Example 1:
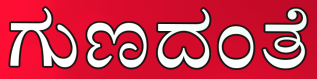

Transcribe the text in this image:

ಗುಣದಂತೆ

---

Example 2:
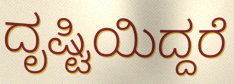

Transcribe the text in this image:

ದೃಷ್ಟಿಯಿದ್ದರೆ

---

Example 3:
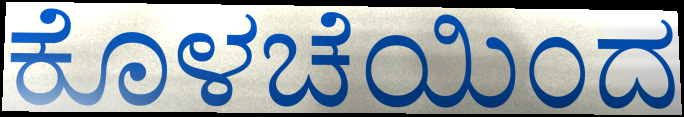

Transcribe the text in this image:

ಕೊಳಚೆಯಿಂದ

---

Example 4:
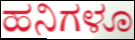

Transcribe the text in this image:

ಹನಿಗಳೂ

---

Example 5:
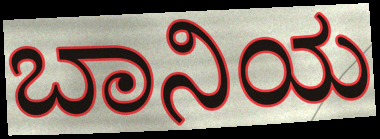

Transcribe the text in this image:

ಬಾನಿಯ